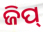
ଜିପ୍